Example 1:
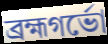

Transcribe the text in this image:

ব্রহ্মগর্ভো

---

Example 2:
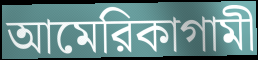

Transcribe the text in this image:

আমেরিকাগামী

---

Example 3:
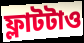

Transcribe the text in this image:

ফ্লাটটাও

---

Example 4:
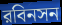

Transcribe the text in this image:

রবিনসন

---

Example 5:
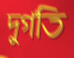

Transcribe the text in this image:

দুর্গতি